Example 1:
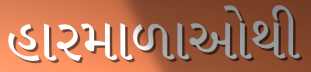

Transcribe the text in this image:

હારમાળાઓથી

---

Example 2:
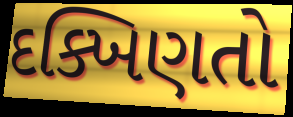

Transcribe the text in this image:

દક્ખિણતો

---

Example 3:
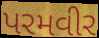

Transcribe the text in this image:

પરમવીર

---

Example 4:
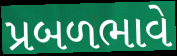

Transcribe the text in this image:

પ્રબળભાવે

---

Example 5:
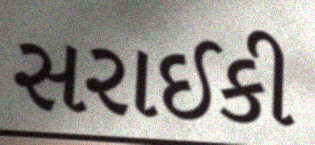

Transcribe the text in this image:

સરાઈકી